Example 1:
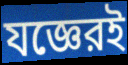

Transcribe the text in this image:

যজ্ঞেরই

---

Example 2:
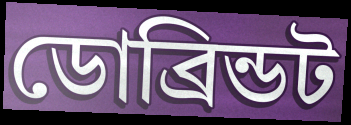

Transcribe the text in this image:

ডোব্রিন্ডট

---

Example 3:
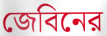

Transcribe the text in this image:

জেবিনের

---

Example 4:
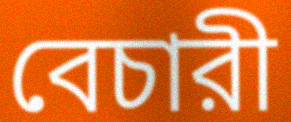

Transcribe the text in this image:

বেচারী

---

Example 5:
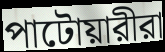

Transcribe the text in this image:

পাটোয়ারীরা